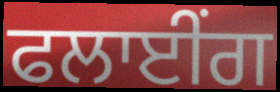
ਫਲਾਈਂਗ